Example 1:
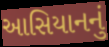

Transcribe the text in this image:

આસિયાનનું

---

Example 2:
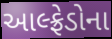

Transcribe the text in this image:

આલ્ફ્રેડોના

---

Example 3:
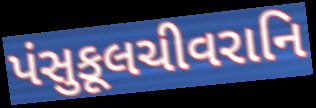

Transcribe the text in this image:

પંસુકૂલચીવરાનિ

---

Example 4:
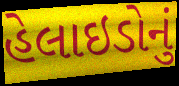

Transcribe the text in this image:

હેલાઇડોનું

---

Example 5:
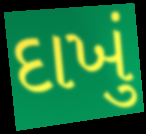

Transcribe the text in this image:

દાખું